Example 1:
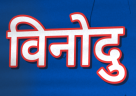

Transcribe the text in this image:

विनोदु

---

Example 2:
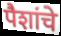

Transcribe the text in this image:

पैशांचे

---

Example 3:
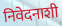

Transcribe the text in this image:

निवेदनाशी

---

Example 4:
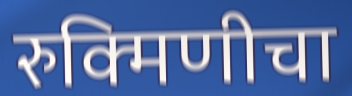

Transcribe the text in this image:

रुक्मिणीचा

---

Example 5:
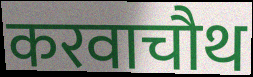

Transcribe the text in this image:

करवाचौथ